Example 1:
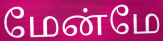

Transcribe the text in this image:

மேன்மே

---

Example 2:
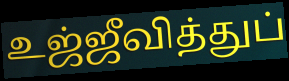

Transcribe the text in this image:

உஜ்ஜீவித்துப்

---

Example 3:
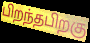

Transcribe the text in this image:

பிறந்தபிறகு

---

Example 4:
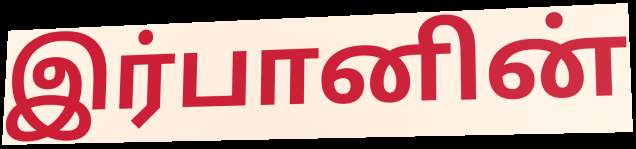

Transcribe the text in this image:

இர்பானின்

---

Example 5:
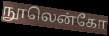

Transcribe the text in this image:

நூலென்கோ